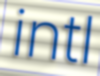
intl